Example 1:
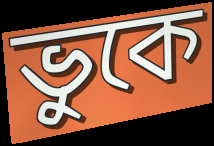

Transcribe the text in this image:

ভুকে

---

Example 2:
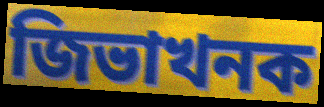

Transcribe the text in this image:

জিভাখনক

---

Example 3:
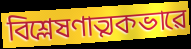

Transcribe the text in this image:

বিশ্লেষণাত্মকভাৱে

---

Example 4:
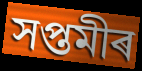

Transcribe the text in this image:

সপ্তমীৰ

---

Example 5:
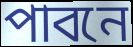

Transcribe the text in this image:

পাবনে